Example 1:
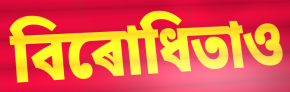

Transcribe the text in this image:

বিৰোধিতাও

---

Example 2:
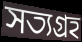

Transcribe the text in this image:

সত্যগ্ৰহ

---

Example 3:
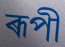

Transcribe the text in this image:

ৰূপী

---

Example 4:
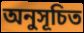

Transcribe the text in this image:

অনুসূচিত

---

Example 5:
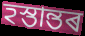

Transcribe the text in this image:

হস্তান্তৰ